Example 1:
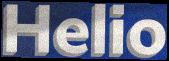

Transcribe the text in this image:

Helio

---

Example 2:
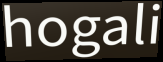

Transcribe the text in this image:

hogali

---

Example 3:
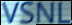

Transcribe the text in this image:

VSNL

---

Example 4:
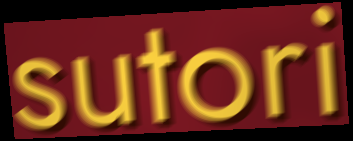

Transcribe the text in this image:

sutori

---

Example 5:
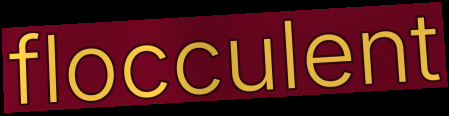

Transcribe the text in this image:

flocculent